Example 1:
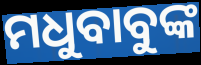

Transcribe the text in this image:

ମଧୁବାବୁଙ୍କ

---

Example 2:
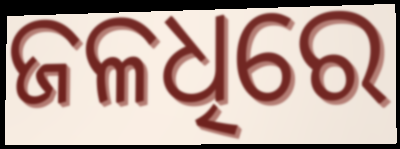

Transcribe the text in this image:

ଜଳଧିରେ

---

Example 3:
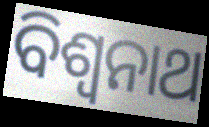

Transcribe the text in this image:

ବିଶ୍ଵନାଥ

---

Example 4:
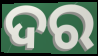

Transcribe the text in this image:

ଦର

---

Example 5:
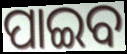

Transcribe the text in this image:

ପାଇବ